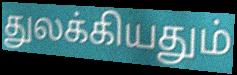
துலக்கியதும்